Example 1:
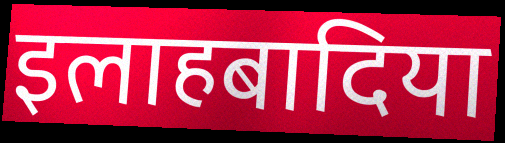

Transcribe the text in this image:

इलाहबादिया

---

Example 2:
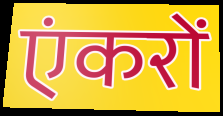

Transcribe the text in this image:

एंकरों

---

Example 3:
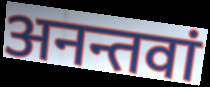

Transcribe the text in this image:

अनन्तवां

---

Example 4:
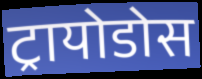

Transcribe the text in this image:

ट्रायोडोस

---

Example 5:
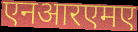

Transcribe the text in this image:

एनआरएमए